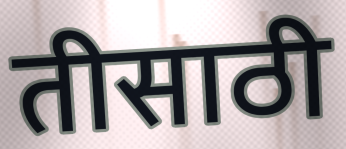
तीसाठी